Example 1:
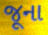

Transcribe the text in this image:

જૂના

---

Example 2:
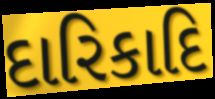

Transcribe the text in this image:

દારિકાદિ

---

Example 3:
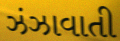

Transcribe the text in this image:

ઝંઝાવાતી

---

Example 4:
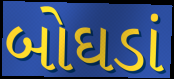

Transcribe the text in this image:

બોઘડાં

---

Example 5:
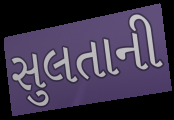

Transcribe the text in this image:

સુલતાની